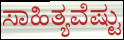
ಸಾಹಿತ್ಯವೆಷ್ಟು